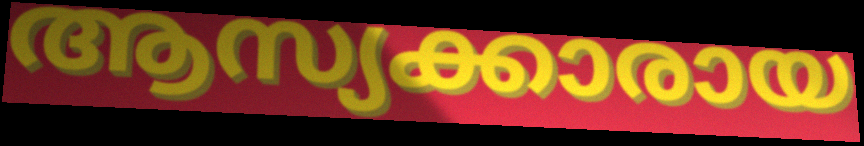
ആസ്യക്കാരായ